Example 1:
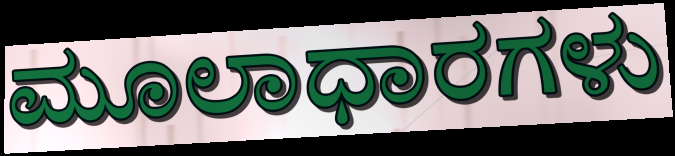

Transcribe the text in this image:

ಮೂಲಾಧಾರಗಳು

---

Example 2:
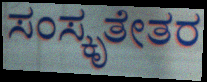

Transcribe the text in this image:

ಸಂಸ್ಕೃತೇತರ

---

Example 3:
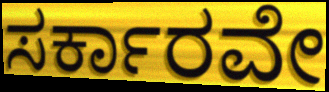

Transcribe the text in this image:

ಸರ್ಕಾರವೇ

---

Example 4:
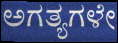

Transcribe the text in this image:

ಅಗತ್ಯಗಳೇ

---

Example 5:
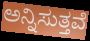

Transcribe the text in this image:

ಅನ್ನಿಸುತ್ತವೆ